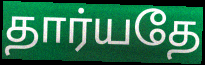
தார்யதே